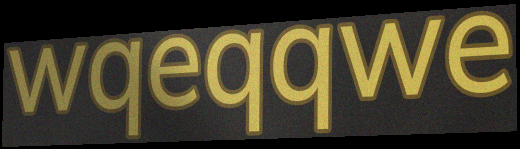
wqeqqwe